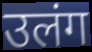
उलंग